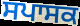
ਸਪਾਸਕ